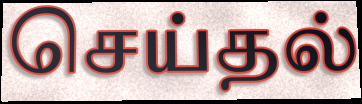
செய்தல்